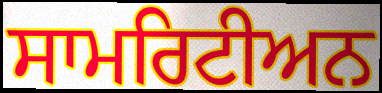
ਸਾਮਰਿਟੀਅਨ